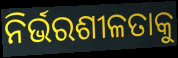
ନିର୍ଭରଶୀଳତାକୁ